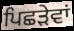
ਪਿਛੜੇਵਾਂ